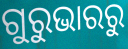
ଗୁରୁଭାରରୁ